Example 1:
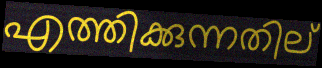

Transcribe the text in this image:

എത്തിക്കുന്നതില്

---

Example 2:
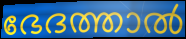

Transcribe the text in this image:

ഭേദത്താൽ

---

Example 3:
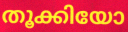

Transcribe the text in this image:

തൂക്കിയോ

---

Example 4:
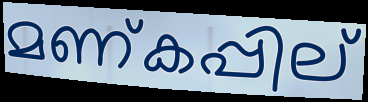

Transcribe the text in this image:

മണ്കപ്പില്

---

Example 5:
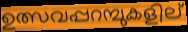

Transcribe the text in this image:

ഉത്സവപ്പറമ്പുകളില്